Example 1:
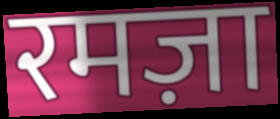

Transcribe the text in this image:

रमज़ा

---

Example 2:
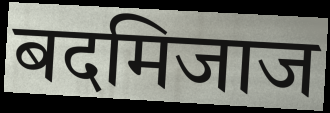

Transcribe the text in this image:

बदमिजाज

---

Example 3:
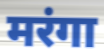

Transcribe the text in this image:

मरंगा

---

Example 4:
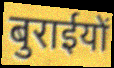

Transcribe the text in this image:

बुराईयों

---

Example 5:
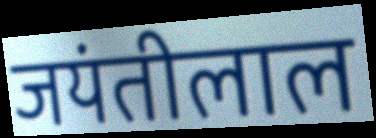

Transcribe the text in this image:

जयंतीलाल